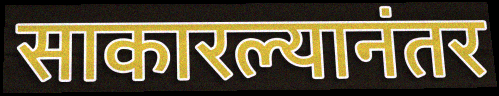
साकारल्यानंतर